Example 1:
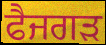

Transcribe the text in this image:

ਫੈਜਗੜ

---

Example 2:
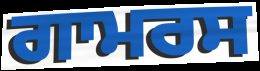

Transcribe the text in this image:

ਗਾਮਰਸ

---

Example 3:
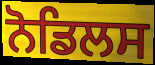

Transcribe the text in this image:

ਨੋਡਿਲਸ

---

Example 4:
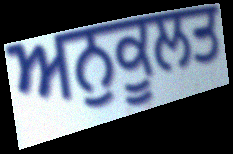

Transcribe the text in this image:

ਅਨੁਕੂਲਤ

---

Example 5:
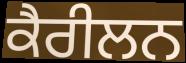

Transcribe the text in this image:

ਕੈਰੀਲਨ